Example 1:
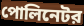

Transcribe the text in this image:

পোলিনেটর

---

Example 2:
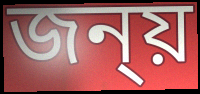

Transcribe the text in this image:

জন্য়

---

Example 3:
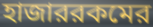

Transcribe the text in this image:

হাজাররকমের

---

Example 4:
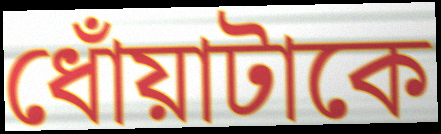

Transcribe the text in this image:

ধোঁয়াটাকে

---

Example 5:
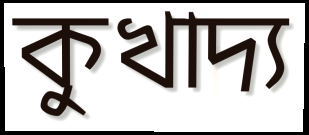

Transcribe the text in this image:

কুখাদ্য